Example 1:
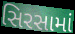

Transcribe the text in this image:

સિરસામાં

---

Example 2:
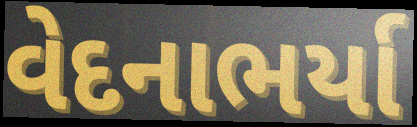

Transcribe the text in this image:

વેદનાભર્યા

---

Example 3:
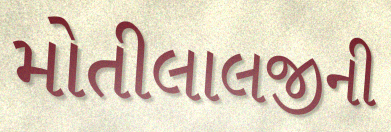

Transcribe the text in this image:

મોતીલાલજીની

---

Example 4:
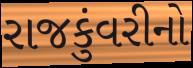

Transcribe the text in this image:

રાજકુંવરીનો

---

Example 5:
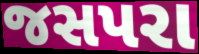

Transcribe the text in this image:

જસપરા